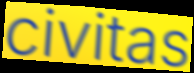
civitas